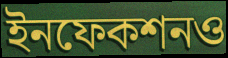
ইনফেকশনও